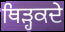
ਥਿੜ੍ਹਕਦੇ